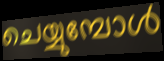
ചെയ്യുമ്പോൾ